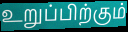
உறுப்பிற்கும்